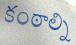
కంఠాల్ని